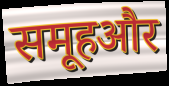
समूहऔर